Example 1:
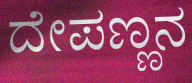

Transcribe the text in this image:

ದೇಪಣ್ಣನ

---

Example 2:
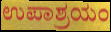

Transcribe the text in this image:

ಉಪಾಶ್ರಯಂ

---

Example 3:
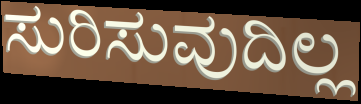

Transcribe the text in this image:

ಸುರಿಸುವುದಿಲ್ಲ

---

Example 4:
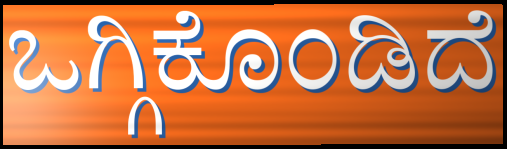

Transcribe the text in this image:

ಒಗ್ಗಿಕೊಂಡಿದೆ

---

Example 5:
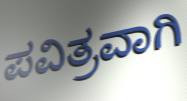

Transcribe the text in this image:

ಪವಿತ್ರವಾಗಿ